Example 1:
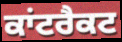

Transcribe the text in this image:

ਕਾਂਟਰੈਕਟ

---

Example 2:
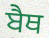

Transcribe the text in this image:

ਬੈਥ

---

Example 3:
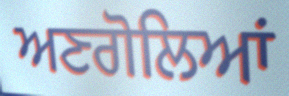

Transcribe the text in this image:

ਅਣਗੋਲਿਆਂ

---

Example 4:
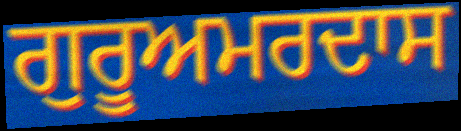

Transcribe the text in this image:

ਗੁਰੂਅਮਰਦਾਸ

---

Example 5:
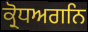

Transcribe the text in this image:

ਕ੍ਰੋਧਅਗਨਿ